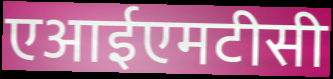
एआईएमटीसी